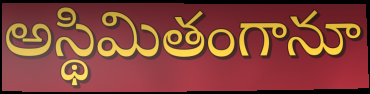
అస్థిమితంగానూ